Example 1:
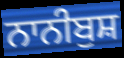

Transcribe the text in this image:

ਨਾਨੀਬੁਸ਼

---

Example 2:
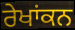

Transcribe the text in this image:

ਰੇਖਾਂਕਨ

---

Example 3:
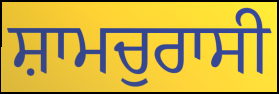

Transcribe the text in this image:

ਸ਼ਾਮਚੁਰਾਸੀ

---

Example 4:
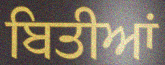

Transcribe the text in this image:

ਬਿਤੀਆਂ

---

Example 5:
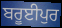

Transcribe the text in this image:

ਬਰੂਈਪੁਰ